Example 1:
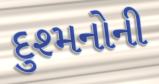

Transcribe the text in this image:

દુશ્મનોની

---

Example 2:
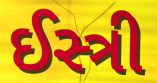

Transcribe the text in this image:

ઈસ્ત્રી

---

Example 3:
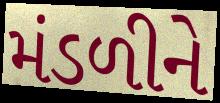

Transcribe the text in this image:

મંડળીને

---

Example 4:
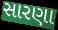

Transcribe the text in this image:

સારણા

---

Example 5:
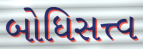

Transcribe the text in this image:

બોધિસત્ત્વ